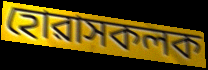
হোৱাসকলক